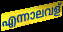
എന്നാലവള്